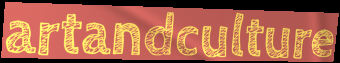
artandculture